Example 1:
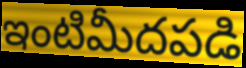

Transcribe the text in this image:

ఇంటిమీదపడి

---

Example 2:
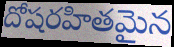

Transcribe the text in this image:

దోషరహితమైన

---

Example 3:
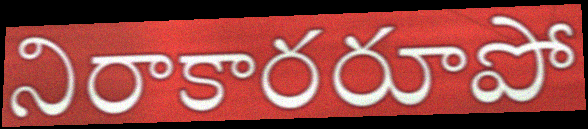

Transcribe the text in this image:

నిరాకారరూపో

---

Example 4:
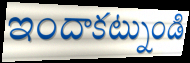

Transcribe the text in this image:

ఇందాకట్నుండి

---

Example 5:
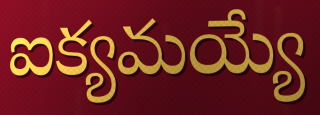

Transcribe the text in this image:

ఐక్యమయ్యే